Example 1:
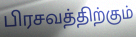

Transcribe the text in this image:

பிரசவத்திற்கும்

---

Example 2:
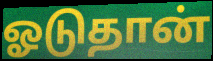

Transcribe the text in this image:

ஓடுதான்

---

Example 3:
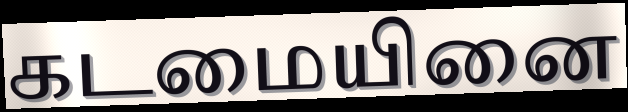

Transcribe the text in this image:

கடமையினை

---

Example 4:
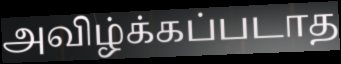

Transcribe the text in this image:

அவிழ்க்கப்படாத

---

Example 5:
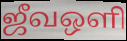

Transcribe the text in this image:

ஜீவஒளி